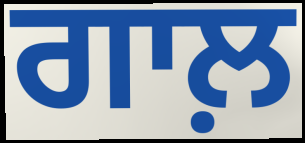
ਗਾਲ਼